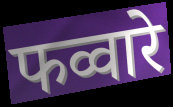
फव्वारे